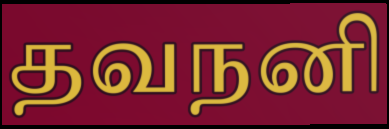
தவநனி